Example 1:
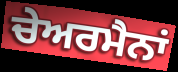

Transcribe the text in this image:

ਚੇਅਰਮੈਨਾਂ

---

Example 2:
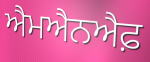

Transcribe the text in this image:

ਐਮਐਨਐਫ਼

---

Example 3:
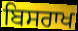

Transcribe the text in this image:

ਬਿਸਰਾਖ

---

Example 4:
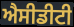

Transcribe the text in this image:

ਐਸੀਡੀਟੀ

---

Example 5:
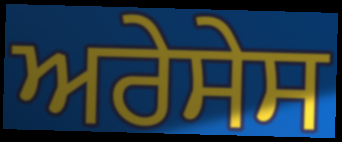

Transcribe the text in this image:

ਅਰੇਸੇਸ